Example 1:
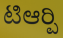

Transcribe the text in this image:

ಟಿಆರ್‍ಪಿ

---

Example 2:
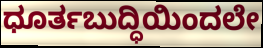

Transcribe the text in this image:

ಧೂರ್ತಬುದ್ಧಿಯಿಂದಲೇ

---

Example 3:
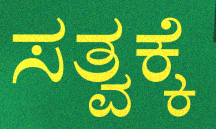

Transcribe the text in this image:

ಸತ್ವಕ್ಕೆ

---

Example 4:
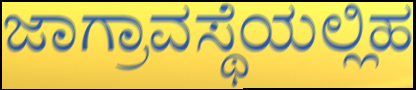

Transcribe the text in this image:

ಜಾಗ್ರಾವಸ್ಥೆಯಲ್ಲಿಹ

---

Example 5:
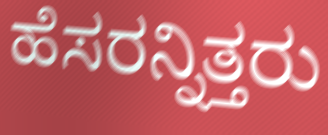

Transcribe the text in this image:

ಹೆಸರನ್ನಿತ್ತರು